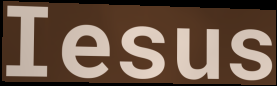
Iesus